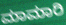
ಮಾಮಾರಿ